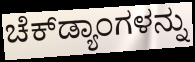
ಚೆಕ್‌ಡ್ಯಾಂಗಳನ್ನು